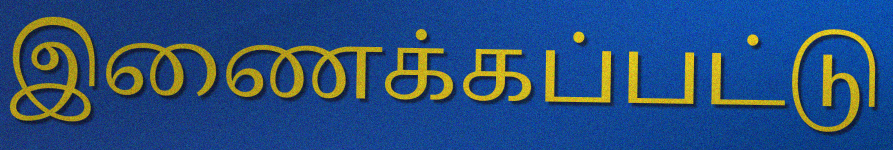
இணைக்கப்பட்டு